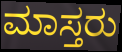
ಮಾಸ್ತರು